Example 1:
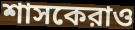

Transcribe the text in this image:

শাসকেরাও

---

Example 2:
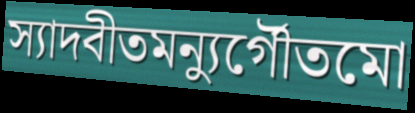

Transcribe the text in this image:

স্যাদবীতমন্যুর্গৌতমো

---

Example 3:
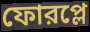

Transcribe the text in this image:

ফোরপ্লে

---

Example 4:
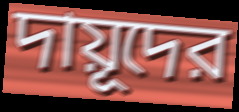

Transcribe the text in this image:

দায়ূদের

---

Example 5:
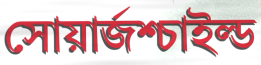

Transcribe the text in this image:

সোয়ার্জশ্চাইল্ড